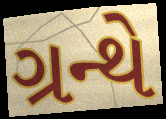
ગ્રન્થે